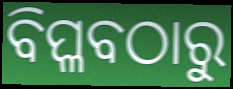
ବିପ୍ଳବଠାରୁ